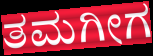
ತಮಗೀಗ